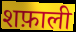
शफ़ाली